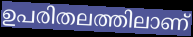
ഉപരിതലത്തിലാണ്